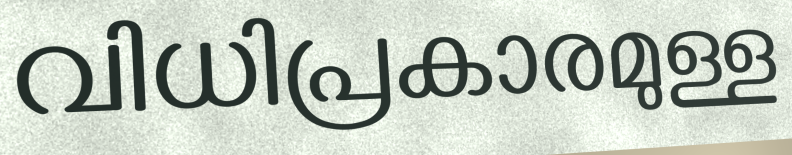
വിധിപ്രകാരമുള്ള